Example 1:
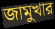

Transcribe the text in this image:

জামুখার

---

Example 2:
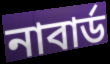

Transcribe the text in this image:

নাবার্ড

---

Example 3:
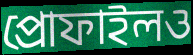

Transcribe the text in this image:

প্রোফাইলও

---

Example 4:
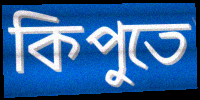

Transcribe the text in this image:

কিপুতে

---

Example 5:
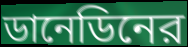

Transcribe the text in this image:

ডানেডিনের